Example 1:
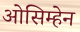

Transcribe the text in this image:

ओसिम्हेन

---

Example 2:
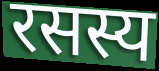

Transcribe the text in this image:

रसस्य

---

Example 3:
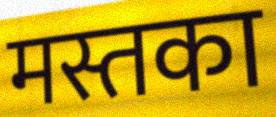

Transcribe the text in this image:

मस्तका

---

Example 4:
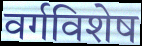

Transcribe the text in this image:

वर्गविशेष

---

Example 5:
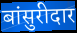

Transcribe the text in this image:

बांसुरीदार